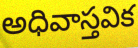
అధివాస్తవిక